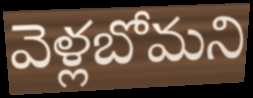
వెళ్లబోమని